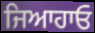
ਜਿਆਹਾਓ